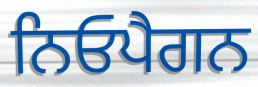
ਨਿਓਪੈਗਨ